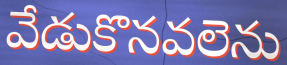
వేడుకొనవలెను